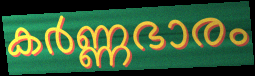
കർണ്ണഭാരം